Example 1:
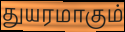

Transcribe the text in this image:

துயரமாகும்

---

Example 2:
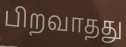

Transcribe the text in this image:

பிறவாதது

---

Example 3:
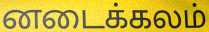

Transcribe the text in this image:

னடைக்கலம்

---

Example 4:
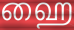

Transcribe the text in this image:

ஹை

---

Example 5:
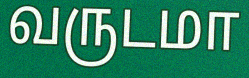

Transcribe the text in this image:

வருடமா